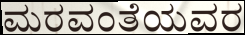
ಮರವಂತೆಯವರ